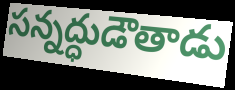
సన్నద్ధుడౌతాడు